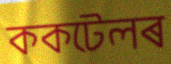
ককটেলৰ